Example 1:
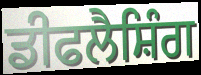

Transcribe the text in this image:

ਡੀਫਲੈਸ਼ਿੰਗ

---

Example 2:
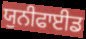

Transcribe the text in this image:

ਯੁਨੀਫਾਈਡ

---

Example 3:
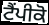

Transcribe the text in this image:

ਟੈਂਪੀਕੋ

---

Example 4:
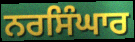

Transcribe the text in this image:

ਨਰਸਿੰਘਾਰ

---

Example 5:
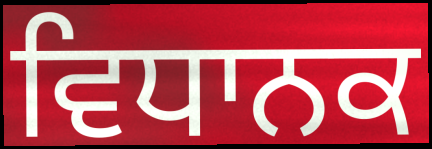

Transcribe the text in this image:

ਵਿਧਾਨਕ